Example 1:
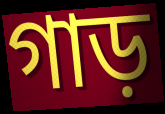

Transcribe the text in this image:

গাড়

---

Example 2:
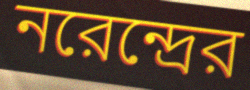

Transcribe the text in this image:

নরেন্দ্রের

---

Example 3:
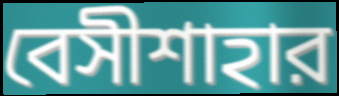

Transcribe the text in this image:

বেসীশাহার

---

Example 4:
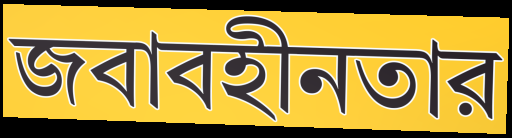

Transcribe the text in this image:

জবাবহীনতার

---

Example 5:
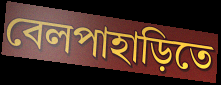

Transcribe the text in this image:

বেলপাহাড়িতে